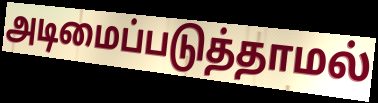
அடிமைப்படுத்தாமல்